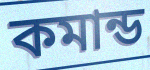
কমান্ড